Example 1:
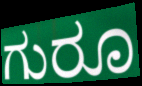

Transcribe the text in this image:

ಗುರೂ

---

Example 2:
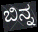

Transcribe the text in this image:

ಬಿನ್ನ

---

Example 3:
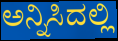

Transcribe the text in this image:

ಅನ್ನಿಸಿದಲ್ಲಿ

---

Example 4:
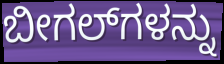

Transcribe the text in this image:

ಬೀಗಲ್‌ಗಳನ್ನು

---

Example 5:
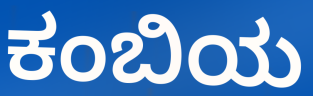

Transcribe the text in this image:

ಕಂಬಿಯ